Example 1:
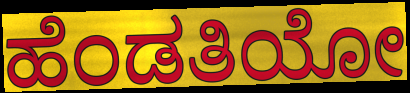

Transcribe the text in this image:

ಹೆಂಡತಿಯೋ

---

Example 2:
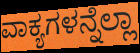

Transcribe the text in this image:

ವಾಕ್ಯಗಳನ್ನೆಲ್ಲಾ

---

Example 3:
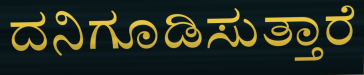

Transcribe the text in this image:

ದನಿಗೂಡಿಸುತ್ತಾರೆ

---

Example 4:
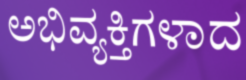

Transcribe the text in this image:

ಅಭಿವ್ಯಕ್ತಿಗಳಾದ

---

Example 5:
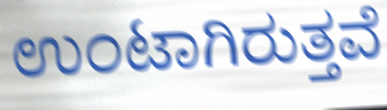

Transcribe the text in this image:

ಉಂಟಾಗಿರುತ್ತವೆ